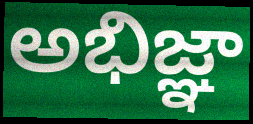
అభిజ్ఞా